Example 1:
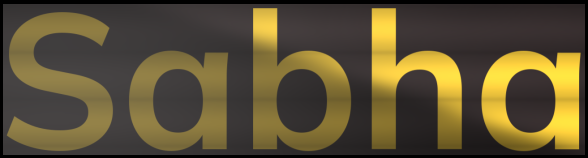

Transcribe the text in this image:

Sabha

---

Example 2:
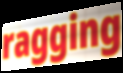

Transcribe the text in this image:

ragging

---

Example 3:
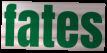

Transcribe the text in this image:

fates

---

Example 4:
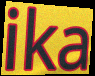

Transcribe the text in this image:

ika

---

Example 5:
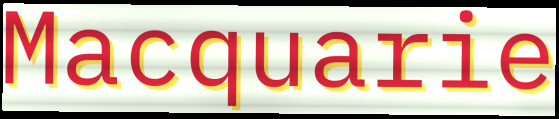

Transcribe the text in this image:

Macquarie